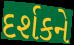
દર્શકને